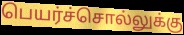
பெயர்ச்சொல்லுக்கு